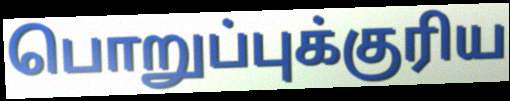
பொறுப்புக்குரிய